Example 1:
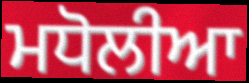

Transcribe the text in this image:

ਮਧੋਲੀਆ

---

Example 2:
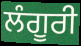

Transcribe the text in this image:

ਲੰਗੂਰੀ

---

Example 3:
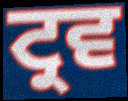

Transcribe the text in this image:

ਟ੍ਰਵ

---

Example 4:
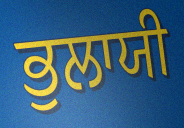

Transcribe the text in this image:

ਭੁਲਾਯੀ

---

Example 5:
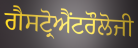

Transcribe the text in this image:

ਗੈਸਟ੍ਰੋਐਂਟਰੌਲੋਜੀ